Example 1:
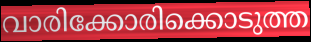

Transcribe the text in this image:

വാരിക്കോരിക്കൊടുത്ത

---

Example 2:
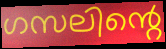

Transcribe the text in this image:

ഗസലിന്റെ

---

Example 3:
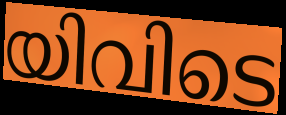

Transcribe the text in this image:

യിവിടെ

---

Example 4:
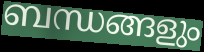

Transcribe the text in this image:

ബന്ധങ്ങളും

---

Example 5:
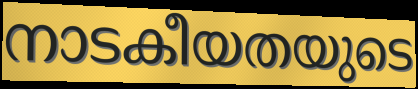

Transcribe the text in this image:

നാടകീയതയുടെ